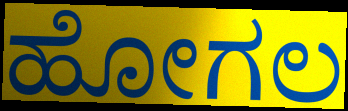
ಹೋಗಲ